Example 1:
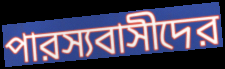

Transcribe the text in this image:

পারস্যবাসীদের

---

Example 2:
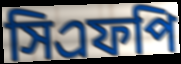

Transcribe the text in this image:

সিএফপি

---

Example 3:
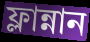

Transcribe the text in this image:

ফ্লান্নান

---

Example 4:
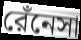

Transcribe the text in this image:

রেঁনেসা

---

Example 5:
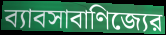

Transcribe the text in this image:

ব্যাবসাবাণিজ্যের